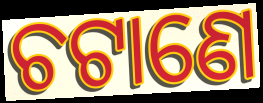
ଚଟାଣେ